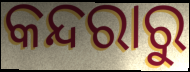
କନ୍ଦରାରୁ